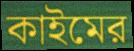
কাইমের